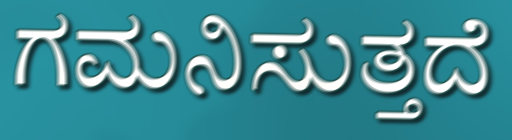
ಗಮನಿಸುತ್ತದೆ